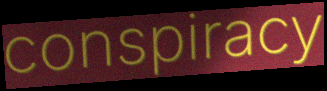
conspiracy